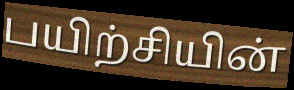
பயிற்சியின்